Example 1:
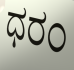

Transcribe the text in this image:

ಧರಂ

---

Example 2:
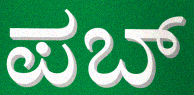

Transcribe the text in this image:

ಪಬ್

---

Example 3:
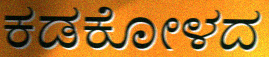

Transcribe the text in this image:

ಕಡಕೋಳದ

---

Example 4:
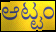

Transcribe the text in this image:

ಆಟ್ಟಂ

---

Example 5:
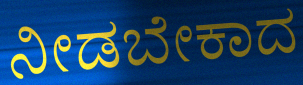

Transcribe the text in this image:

ನೀಡಬೇಕಾದ